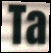
Ta